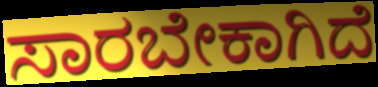
ಸಾರಬೇಕಾಗಿದೆ